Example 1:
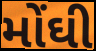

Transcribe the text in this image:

મોંઘી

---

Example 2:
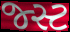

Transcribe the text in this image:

જ્સ્ટ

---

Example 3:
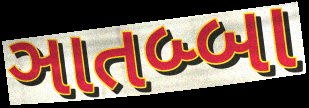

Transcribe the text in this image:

ઞાતબ્બા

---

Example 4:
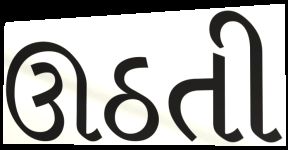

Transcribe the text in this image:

ઊઠતી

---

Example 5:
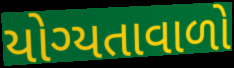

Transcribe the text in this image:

યોગ્યતાવાળો